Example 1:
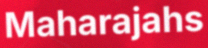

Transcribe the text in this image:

Maharajahs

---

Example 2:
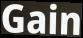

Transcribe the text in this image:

Gain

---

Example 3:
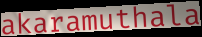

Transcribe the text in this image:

akaramuthala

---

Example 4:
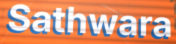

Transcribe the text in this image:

Sathwara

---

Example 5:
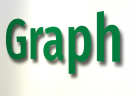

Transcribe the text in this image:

Graph